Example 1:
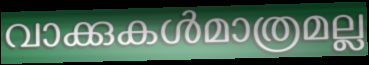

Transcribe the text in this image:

വാക്കുകൾമാത്രമല്ല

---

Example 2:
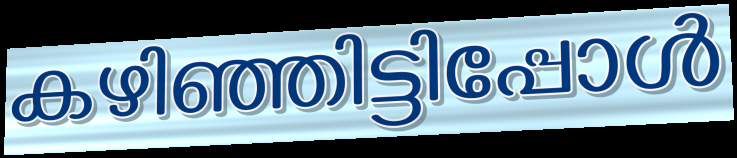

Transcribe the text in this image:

കഴിഞ്ഞിട്ടിപ്പോൾ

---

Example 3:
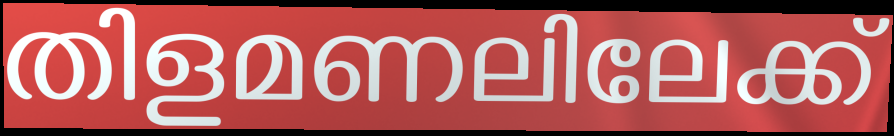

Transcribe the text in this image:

തിളമണലിലേക്ക്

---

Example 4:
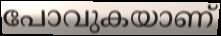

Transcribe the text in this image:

പോവുകയാണ്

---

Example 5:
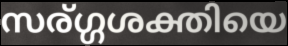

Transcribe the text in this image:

സര്ഗ്ഗശക്തിയെ